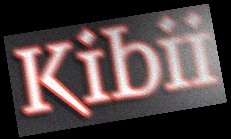
Kibii